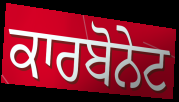
ਕਾਰਬੋਨੇਟ